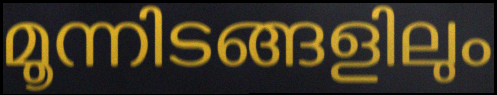
മൂന്നിടങ്ങളിലും